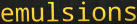
emulsions